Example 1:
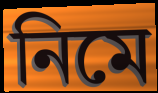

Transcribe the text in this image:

নিমে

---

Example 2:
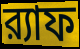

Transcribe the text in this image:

র‍্যাফ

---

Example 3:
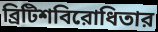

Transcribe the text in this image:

ব্রিটিশবিরোধিতার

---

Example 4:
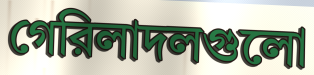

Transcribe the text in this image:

গেরিলাদলগুলো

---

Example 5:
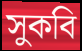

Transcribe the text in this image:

সুকবি